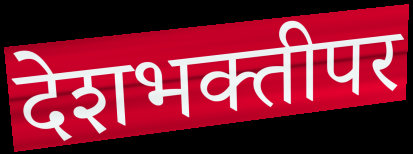
देशभक्तीपर